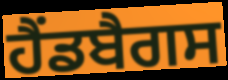
ਹੈਂਡਬੈਗਸ